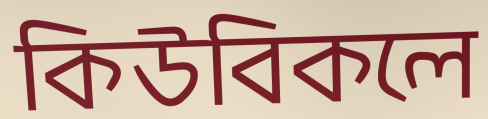
কিউবিকলে